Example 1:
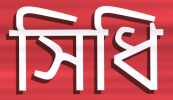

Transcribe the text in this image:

সিধি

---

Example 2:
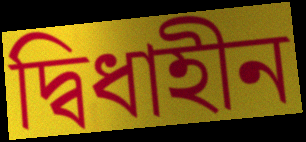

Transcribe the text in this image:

দ্বিধাহীন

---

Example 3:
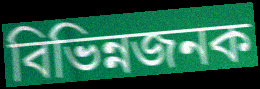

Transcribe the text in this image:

বিভিন্নজনক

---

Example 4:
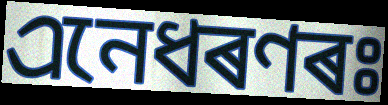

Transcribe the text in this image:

এনেধৰণৰঃ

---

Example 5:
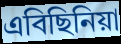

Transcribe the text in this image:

এবিছিনিয়া